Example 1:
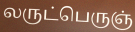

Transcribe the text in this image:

லருட்பெருஞ்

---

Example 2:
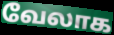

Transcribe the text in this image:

வேலாக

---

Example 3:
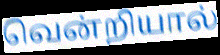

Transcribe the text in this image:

வென்றியால்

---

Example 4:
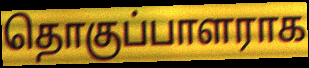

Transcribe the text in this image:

தொகுப்பாளராக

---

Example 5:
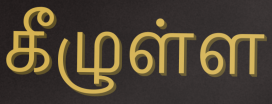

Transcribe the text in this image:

கீழுள்ள